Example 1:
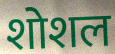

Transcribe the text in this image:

शोशल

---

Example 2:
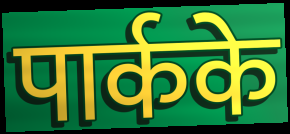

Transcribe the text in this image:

पार्कके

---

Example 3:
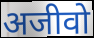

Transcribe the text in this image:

अजीवो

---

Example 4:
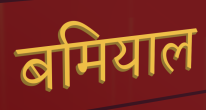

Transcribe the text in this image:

बमियाल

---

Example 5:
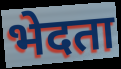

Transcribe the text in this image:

भेदता